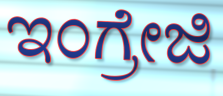
ಇಂಗ್ರೇಜಿ